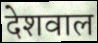
देशवाल